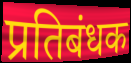
प्रतिबंधक